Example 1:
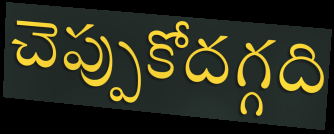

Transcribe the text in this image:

చెప్పుకోదగ్గది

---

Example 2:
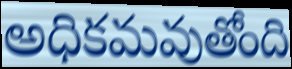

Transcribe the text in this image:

అధికమవుతోంది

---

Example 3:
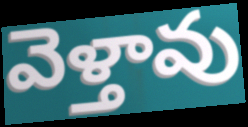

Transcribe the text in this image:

వెళ్తావు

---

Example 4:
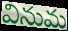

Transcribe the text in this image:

వినుమ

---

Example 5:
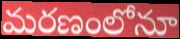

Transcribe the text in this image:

మరణంలోనూ